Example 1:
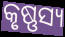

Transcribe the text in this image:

କୃଷ୍ଣସ୍ୟ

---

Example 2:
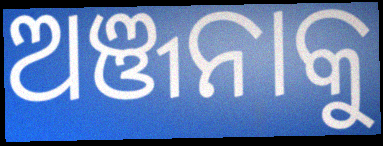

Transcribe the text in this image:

ଅଞ୍ଜନାକୁ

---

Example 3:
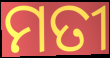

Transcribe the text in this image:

ମତୀ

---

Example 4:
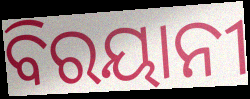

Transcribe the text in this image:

ବିରୟାନୀ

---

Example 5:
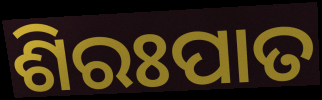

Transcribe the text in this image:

ଶିରଃପାତ